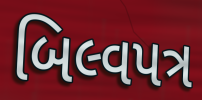
બિલ્વપત્ર